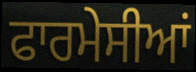
ਫਾਰਮੇਸੀਆਂ